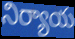
నిర్యాయ